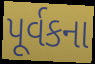
પૂર્વકના